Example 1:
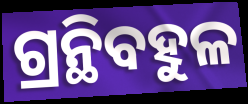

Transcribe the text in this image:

ଗ୍ରନ୍ଥିବହୁଳ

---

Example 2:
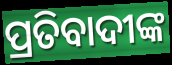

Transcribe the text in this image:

ପ୍ରତିବାଦୀଙ୍କ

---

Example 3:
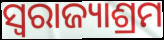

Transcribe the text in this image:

ସ୍ୱରାଜ୍ୟାଶ୍ରମ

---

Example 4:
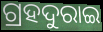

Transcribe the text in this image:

ଗ୍ରହଦୁରାଇ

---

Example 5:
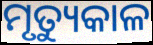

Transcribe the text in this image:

ମୃତ୍ୟୁକାଳ